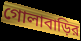
গোলাবাড়ির